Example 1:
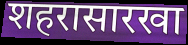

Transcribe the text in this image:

शहरासारखा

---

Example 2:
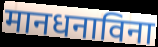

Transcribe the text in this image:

मानधनाविना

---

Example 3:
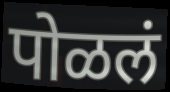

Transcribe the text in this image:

पोळलं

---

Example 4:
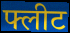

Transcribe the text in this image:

फ्लीट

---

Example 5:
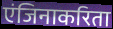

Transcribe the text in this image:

एंजिनाकरिता